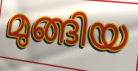
മുങ്ങിയ